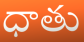
ధాతు